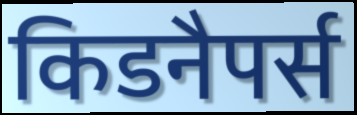
किडनैपर्स